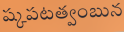
ష్కపటత్వంబున